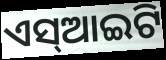
ଏସ୍ଆଇଟି